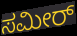
ಸಮೀರ್